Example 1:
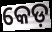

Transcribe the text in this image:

କେଡ଼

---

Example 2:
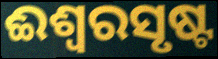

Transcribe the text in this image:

ଈଶ୍ୱରସୃଷ୍ଟ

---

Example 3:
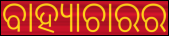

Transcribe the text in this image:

ବାହ୍ୟାଚାରର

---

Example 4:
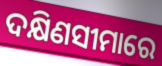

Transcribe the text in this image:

ଦକ୍ଷିଣସୀମାରେ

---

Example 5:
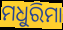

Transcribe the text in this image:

ମଧୁରିମା